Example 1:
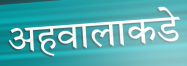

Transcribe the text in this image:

अहवालाकडे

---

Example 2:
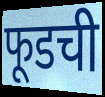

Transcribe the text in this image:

फूडची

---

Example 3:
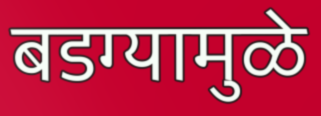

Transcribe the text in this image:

बडग्यामुळे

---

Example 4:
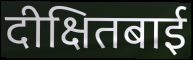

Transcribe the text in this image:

दीक्षितबाई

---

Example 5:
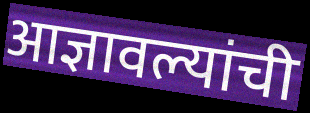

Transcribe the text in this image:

आज्ञावल्यांची